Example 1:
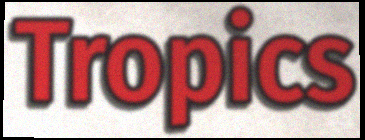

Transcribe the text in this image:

Tropics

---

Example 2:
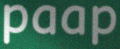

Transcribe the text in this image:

paap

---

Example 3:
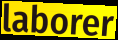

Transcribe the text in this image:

laborer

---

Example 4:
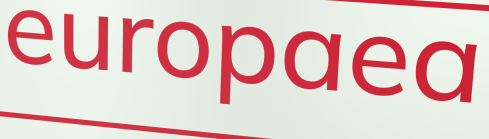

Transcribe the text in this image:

europaea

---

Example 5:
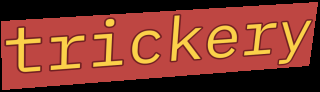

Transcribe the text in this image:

trickery